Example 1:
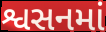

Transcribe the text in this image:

શ્વસનમાં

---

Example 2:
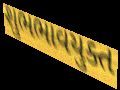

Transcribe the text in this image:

શુભભાવયુક્ત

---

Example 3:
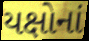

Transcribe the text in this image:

યક્ષોનાં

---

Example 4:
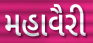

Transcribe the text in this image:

મહાવૈરી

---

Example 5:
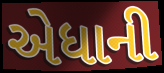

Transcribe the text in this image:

એધાની